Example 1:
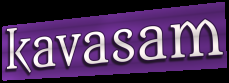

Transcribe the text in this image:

kavasam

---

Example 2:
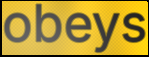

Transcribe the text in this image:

obeys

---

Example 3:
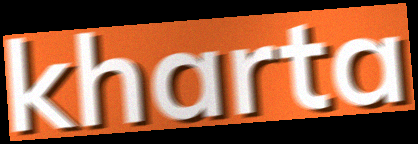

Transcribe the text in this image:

kharta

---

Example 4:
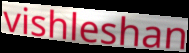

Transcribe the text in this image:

vishleshan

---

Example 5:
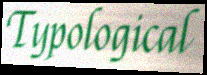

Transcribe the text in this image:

Typological